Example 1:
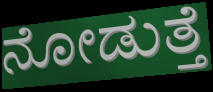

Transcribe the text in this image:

ನೋಡುತ್ತೆ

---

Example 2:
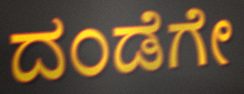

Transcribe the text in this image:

ದಂಡೆಗೇ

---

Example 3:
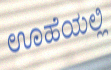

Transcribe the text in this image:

ಊಹೆಯಲ್ಲಿ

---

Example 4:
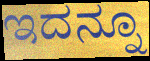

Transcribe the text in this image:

ಇದನ್ನೂ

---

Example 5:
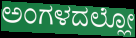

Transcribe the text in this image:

ಅಂಗಳದಲ್ಲೋ